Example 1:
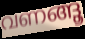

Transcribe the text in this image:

വണങ്ങൂ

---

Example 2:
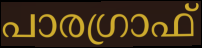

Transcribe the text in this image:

പാരഗ്രാഫ്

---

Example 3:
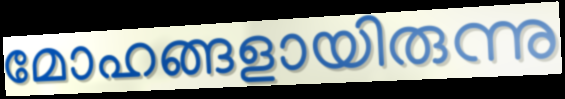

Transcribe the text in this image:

മോഹങ്ങളായിരുന്നു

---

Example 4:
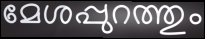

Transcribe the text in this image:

മേശപ്പുറത്തും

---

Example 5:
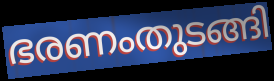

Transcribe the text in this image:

ഭരണംതുടങ്ങി